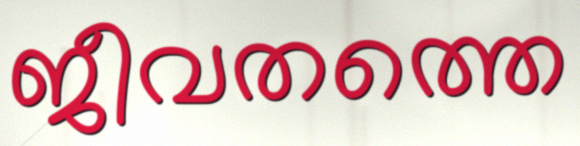
ജീവതത്തെ